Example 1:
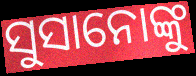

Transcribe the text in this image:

ସୁସାନୋଙ୍କୁ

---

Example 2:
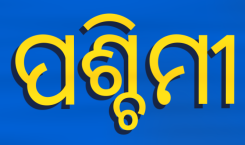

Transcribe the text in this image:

ପଶ୍ଚିମୀ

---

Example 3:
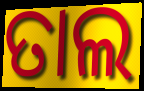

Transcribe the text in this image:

ତାଲ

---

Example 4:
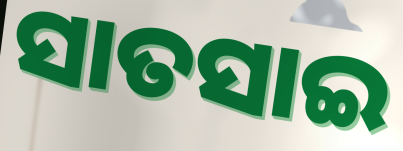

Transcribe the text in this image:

ସାତସାଇ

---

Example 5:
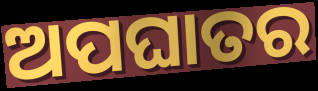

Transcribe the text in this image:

ଅପଘାତର